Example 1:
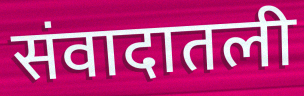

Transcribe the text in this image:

संवादातली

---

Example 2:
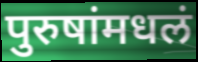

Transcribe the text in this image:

पुरुषांमधलं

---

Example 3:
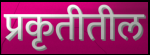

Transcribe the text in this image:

प्रकृतीतील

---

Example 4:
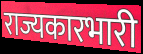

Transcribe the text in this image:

राज्यकारभारी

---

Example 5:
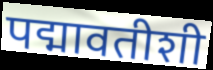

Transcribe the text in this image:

पद्मावतीशी